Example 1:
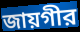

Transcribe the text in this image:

জায়গীর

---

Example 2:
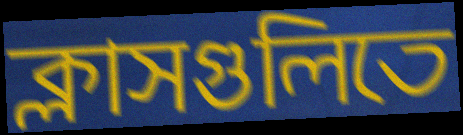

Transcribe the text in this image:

ক্লাসগুলিতে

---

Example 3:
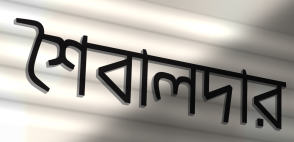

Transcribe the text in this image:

শৈবালদার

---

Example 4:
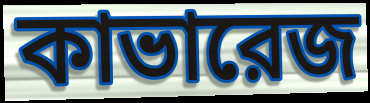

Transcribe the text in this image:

কাভারেজ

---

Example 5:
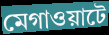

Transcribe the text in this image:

মেগাওয়াটে